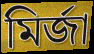
মিৰ্জা